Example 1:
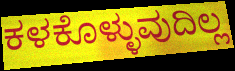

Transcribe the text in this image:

ಕಳಕೊಳ್ಳುವುದಿಲ್ಲ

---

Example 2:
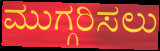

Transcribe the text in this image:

ಮುಗ್ಗರಿಸಲು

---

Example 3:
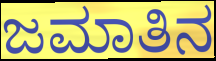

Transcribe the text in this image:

ಜಮಾತಿನ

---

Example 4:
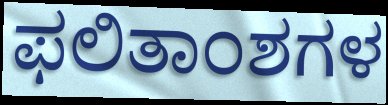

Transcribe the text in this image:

ಫಲಿತಾಂಶಗಳ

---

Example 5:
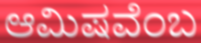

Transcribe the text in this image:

ಆಮಿಷವೆಂಬ